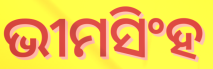
ଭୀମସିଂହ